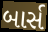
બાર્સ